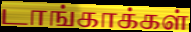
டாங்காக்கள்